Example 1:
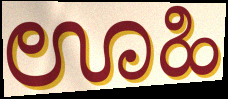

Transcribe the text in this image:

ಊಹಿ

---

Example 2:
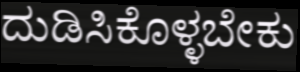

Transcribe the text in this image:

ದುಡಿಸಿಕೊಳ್ಳಬೇಕು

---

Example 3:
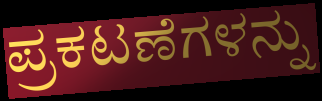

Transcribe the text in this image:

ಪ್ರಕಟಣೆಗಳನ್ನು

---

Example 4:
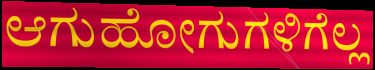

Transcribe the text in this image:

ಆಗುಹೋಗುಗಳಿಗೆಲ್ಲ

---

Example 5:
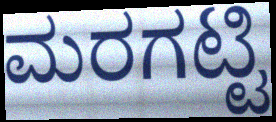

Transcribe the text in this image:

ಮರಗಟ್ಟಿ